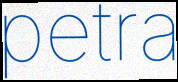
petra